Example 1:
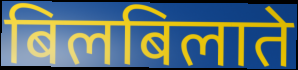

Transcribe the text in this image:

बिलबिलाते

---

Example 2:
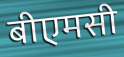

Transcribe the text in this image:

बीएमसी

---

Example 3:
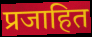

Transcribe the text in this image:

प्रजाहित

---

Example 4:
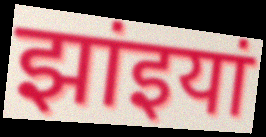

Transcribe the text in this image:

झांइयां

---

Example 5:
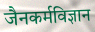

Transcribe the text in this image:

जैनकर्मविज्ञान